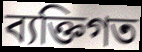
ব্যক্তিগত